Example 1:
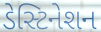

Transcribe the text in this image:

ડેસ્ટિનેશન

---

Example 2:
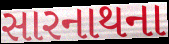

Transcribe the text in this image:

સારનાથના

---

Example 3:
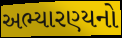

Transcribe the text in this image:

અભ્યારણ્યનો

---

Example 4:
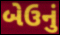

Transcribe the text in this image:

બેઉનું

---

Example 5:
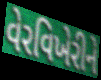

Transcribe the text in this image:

વેરવિખેરીને